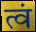
त्वं